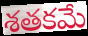
శతకమే